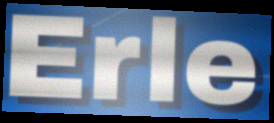
Erle